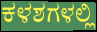
ಕಳಶಗಳಲ್ಲಿ